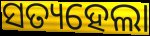
ସତ୍ୟହେଲା